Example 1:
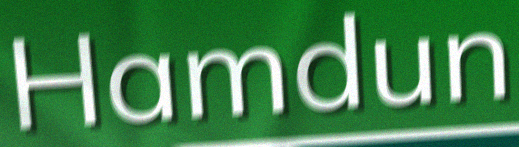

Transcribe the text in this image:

Hamdun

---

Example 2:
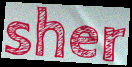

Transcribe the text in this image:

sher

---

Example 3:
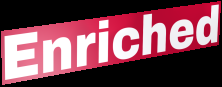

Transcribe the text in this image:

Enriched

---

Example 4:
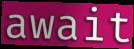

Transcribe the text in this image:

await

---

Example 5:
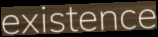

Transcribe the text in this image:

existence